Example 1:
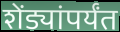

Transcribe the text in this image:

शेंड्यांपर्यंत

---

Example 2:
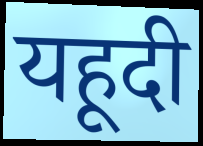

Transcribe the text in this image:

यहूदी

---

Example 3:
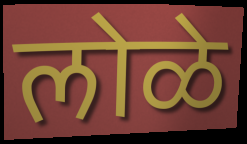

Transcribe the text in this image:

लोळे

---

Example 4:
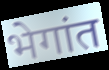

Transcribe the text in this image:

भेगांत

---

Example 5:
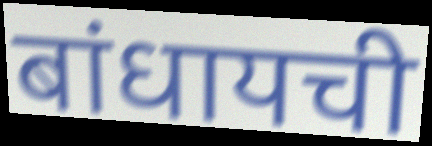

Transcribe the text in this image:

बांधायची